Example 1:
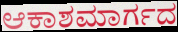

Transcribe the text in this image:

ಆಕಾಶಮಾರ್ಗದ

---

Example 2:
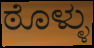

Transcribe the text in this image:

ಠೊಳ್ಳು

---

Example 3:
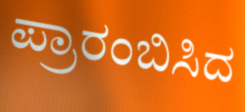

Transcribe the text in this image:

ಪ್ರಾರಂಬಿಸಿದ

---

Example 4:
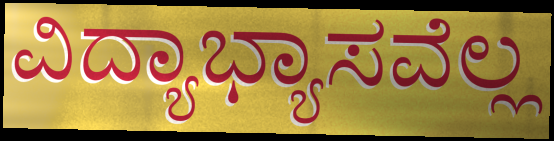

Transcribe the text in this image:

ವಿದ್ಯಾಭ್ಯಾಸವೆಲ್ಲ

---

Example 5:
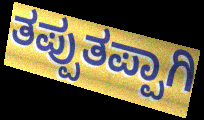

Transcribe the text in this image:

ತಪ್ಪುತಪ್ಪಾಗಿ